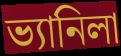
ভ্যানিলা